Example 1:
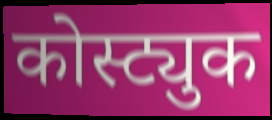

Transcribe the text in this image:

कोस्ट्युक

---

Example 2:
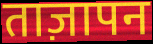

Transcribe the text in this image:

ताज़ापन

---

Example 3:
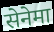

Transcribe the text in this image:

सेनेमा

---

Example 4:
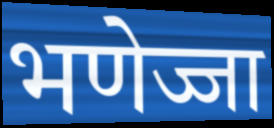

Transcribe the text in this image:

भणेज्जा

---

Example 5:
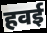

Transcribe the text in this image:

हवई